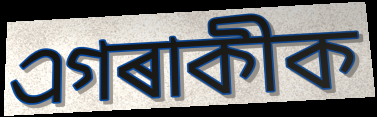
এগৰাকীক